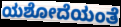
ಯಶೋದೆಯಂತೆ